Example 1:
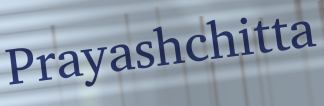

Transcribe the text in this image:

Prayashchitta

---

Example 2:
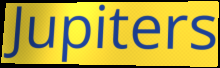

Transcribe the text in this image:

Jupiters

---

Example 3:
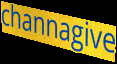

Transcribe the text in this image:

channagive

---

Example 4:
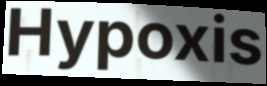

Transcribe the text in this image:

Hypoxis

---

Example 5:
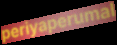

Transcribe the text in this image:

periyaperumal